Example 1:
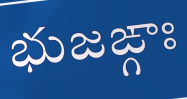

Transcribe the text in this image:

భుజఙ్గాః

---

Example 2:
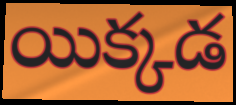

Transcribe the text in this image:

యిక్కడ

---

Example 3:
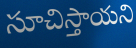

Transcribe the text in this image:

సూచిస్తాయని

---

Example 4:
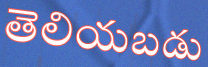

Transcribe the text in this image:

తెలియబడు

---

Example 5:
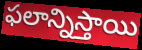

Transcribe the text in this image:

ఫలాన్నిస్తాయి